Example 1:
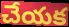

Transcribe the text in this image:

చేయక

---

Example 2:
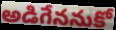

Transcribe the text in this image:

అడిగేననుకో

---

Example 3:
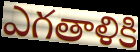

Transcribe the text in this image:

ఎగతాళికి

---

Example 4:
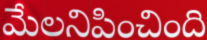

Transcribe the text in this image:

మేలనిపించింది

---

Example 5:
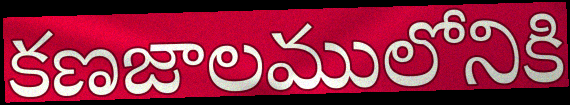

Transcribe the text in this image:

కణజాలములోనికి